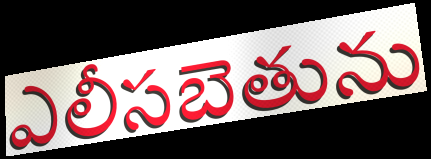
ఎలీసబెతును